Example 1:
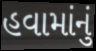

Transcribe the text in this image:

હવામાંનું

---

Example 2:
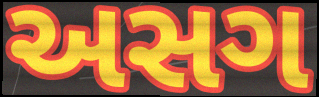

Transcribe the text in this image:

અસગ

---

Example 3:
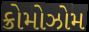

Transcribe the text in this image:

ક્રોમોઝોમ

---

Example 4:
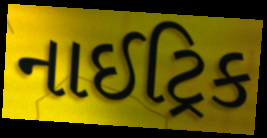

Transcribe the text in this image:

નાઈટ્રિક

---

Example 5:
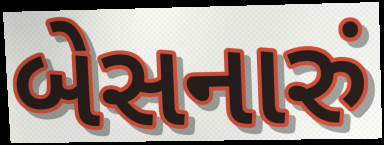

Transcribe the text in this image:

બેસનારું